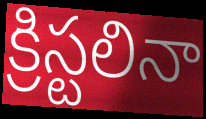
క్రిస్టలినా